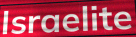
Israelite